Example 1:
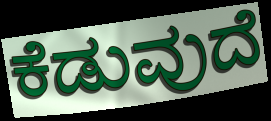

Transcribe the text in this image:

ಕೆಡುವುದೆ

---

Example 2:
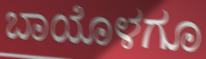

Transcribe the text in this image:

ಬಾಯೊಳಗೂ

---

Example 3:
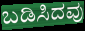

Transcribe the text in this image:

ಬಡಿಸಿದವು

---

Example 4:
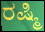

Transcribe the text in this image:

ರಷ್ಮಿ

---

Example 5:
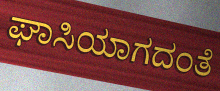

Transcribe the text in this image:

ಘಾಸಿಯಾಗದಂತೆ